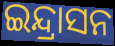
ଇନ୍ଦ୍ରାସନ